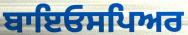
ਬਾਇਓਸਪਿਅਰ